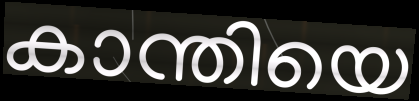
കാന്തിയെ